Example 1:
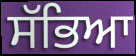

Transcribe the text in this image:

ਸੱਭਿਆ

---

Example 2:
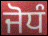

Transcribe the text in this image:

ਜੋਧੰ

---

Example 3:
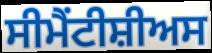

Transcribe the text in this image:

ਸੀਮੈਂਟੀਸ਼ੀਅਸ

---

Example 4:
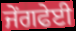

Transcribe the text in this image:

ਜੇਂਗਫੇਈ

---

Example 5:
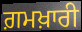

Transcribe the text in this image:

ਗ਼ਮਖ਼ਾਰੀ